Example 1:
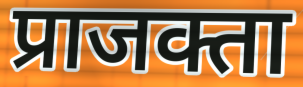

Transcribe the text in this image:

प्राजक्ता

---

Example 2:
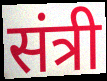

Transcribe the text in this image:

संत्री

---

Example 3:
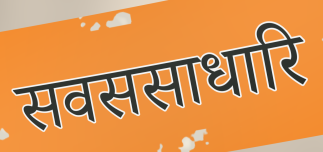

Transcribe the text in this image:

सवससाधारि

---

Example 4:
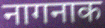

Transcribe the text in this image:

नागनाक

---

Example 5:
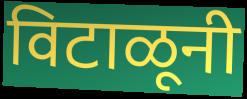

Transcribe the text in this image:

विटाळूनी